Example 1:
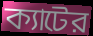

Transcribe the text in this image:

ক্যাটের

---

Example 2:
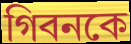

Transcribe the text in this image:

গিবনকে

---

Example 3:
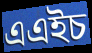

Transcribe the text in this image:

এএইচ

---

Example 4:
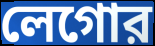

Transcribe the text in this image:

লেগোর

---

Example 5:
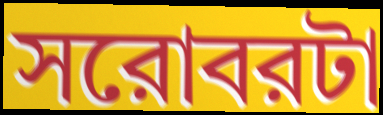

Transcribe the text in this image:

সরোবরটা